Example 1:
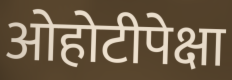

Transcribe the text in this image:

ओहोटीपेक्षा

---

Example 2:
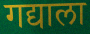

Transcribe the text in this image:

गद्याला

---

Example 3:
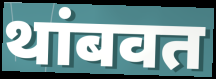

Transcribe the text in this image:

थांबवत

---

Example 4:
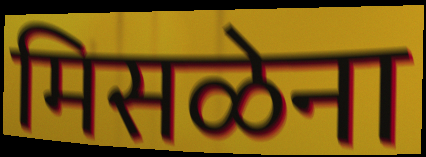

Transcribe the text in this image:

मिसळेना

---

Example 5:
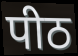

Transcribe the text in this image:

पीठ